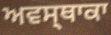
ਅਵਸ੍ਥਾਕਾ